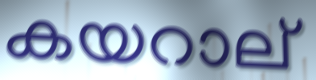
കയറാല്